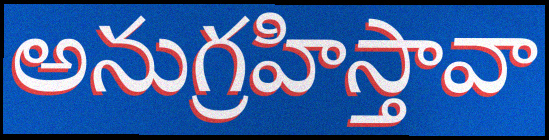
అనుగ్రహిస్తావా